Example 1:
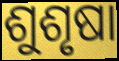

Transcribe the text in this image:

ଶୁଶୃଷା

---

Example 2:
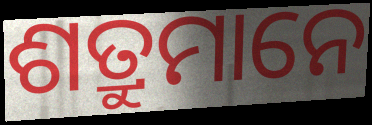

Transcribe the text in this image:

ଶତ୍ରୁମାନେ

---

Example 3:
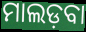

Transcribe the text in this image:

ମାଲଡ଼ବା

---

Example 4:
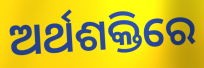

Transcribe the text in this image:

ଅର୍ଥଶକ୍ତିରେ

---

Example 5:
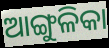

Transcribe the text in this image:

ଆଙ୍ଗୁଳିକା